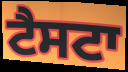
ਟੈਸਟਾ